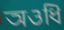
অওধি